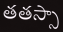
తతస్సా